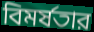
বিমর্ষতার